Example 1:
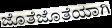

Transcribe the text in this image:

ಜೊತೆಜೊತೆಯಾಗಿ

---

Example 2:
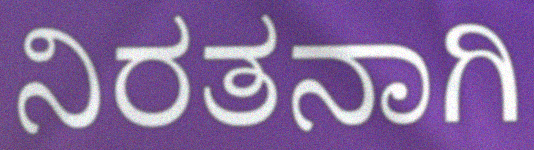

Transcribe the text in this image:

ನಿರತನಾಗಿ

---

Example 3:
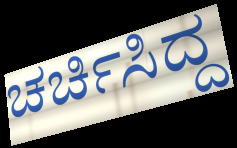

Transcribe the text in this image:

ಚರ್ಚಿಸಿದ್ದ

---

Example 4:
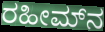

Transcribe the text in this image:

ರಹೀಮ್‌ನ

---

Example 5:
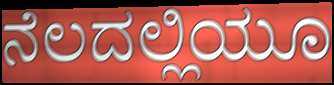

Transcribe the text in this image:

ನೆಲದಲ್ಲಿಯೂ